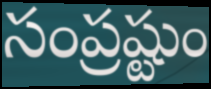
సంప్రష్టుం